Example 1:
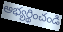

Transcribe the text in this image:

అభ్యర్థించండి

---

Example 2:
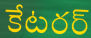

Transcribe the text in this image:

కేటరర్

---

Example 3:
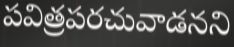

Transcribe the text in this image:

పవిత్రపరచువాడనని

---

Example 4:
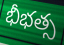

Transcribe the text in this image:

భీభత్స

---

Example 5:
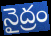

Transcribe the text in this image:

నైద్రం